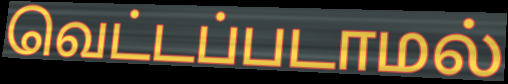
வெட்டப்படாமல்